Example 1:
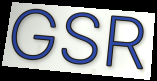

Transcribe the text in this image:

GSR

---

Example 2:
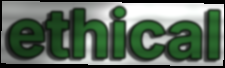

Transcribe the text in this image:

ethical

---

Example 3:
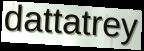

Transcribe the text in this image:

dattatrey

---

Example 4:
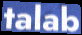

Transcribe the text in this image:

talab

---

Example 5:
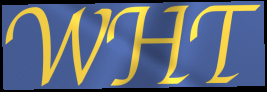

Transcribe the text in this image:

WHT